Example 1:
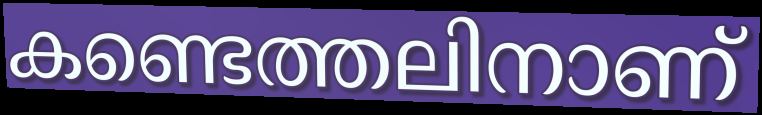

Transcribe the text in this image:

കണ്ടെത്തലിനാണ്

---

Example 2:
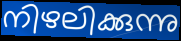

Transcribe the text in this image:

നിഴലിക്കുന്നു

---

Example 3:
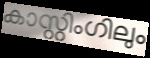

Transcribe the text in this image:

കാസ്റ്റിംഗിലും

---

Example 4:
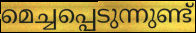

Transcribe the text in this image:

മെച്ചപ്പെടുന്നുണ്ട്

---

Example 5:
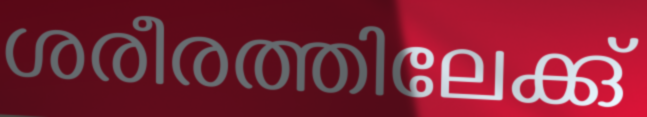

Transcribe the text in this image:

ശരീരത്തിലേക്കു്